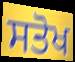
ਸਤੋਖ